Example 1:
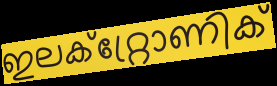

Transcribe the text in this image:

ഇലക്റ്റ്രോണിക്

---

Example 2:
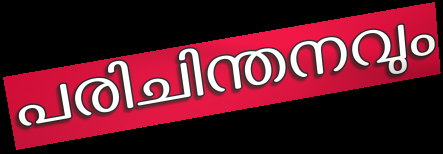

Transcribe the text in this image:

പരിചിന്തനവും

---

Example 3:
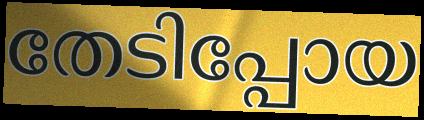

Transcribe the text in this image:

തേടിപ്പോയ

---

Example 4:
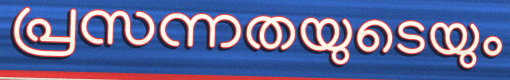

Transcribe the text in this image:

പ്രസന്നതയുടെയും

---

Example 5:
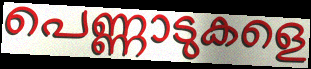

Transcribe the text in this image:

പെണ്ണാടുകളെ